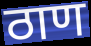
ठाण